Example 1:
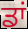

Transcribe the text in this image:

ਡਾਂ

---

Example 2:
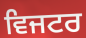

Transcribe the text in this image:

ਵਿਜਟਰ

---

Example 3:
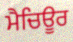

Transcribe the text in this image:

ਮੈਚਿਊਰ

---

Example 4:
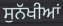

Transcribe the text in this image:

ਸੁਨੱਖੀਆਂ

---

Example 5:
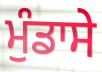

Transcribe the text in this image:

ਮੁੰਡਾਸੇ